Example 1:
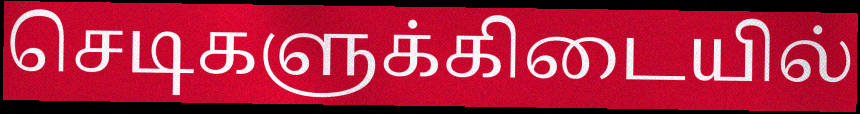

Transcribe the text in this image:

செடிகளுக்கிடையில்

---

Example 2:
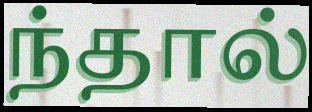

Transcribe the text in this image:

ந்தால்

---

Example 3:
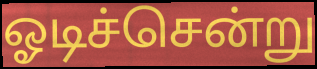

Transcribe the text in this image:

ஓடிச்சென்று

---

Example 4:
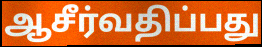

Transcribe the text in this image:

ஆசீர்வதிப்பது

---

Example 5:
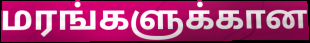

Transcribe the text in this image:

மரங்களுக்கான